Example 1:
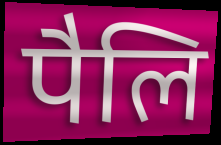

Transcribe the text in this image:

पैलि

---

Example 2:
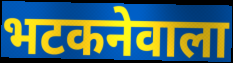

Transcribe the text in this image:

भटकनेवाला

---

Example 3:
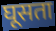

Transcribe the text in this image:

घूसता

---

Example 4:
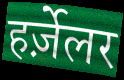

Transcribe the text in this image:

हर्ज़ेलर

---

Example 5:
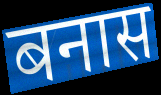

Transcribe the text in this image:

बनास